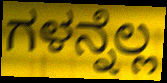
ಗಳನ್ನೆಲ್ಲ